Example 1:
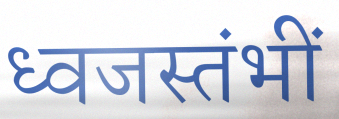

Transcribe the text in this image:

ध्वजस्तंभीं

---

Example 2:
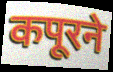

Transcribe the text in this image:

कपूरने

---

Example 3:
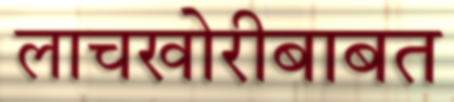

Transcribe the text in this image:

लाचखोरीबाबत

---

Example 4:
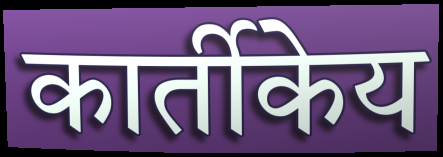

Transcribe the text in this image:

कार्तीकेय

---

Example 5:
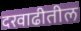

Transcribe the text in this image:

दरवाढीतील